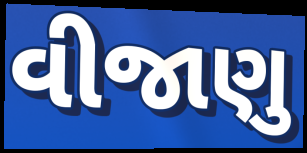
વીજાણુ